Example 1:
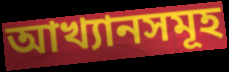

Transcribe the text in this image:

আখ্যানসমূহ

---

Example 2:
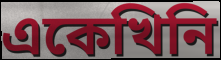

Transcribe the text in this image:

একেখিনি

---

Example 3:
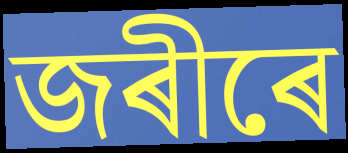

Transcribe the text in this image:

জৰীৰে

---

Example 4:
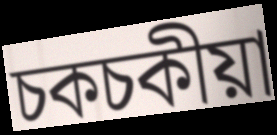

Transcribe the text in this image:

চকচকীয়া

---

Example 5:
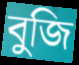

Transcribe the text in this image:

বুজি